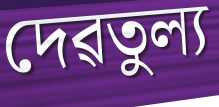
দেৱতুল্য